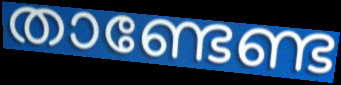
താണ്ടേണ്ട